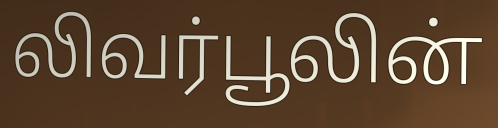
லிவர்பூலின்